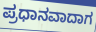
ಪ್ರಧಾನವಾದಾಗ